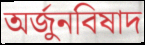
অর্জুনবিষাদ